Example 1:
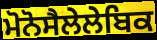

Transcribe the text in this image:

ਮੋਨੋਸੈਲੇਲੇਬਿਕ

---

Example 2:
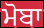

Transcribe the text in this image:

ਮੋਬਾ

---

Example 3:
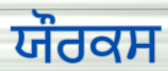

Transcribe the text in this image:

ਯੌਰਕਸ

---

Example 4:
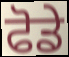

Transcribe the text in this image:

ਫੋਡੇ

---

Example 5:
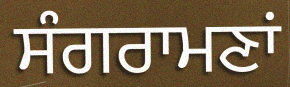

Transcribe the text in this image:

ਸੰਗਰਾਮਣਾਂ